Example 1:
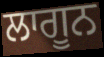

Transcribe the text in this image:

ਲਾਗੂਨ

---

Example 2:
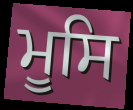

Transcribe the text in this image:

ਮੂਸਿ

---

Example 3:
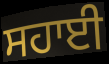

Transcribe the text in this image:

ਸਹਾਈ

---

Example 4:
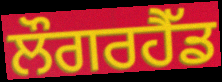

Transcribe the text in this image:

ਲੌਗਰਹੈੱਡ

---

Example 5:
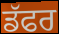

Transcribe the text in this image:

ਡੱਫਰ